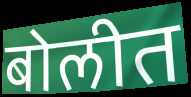
बोलीत